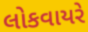
લોકવાયરે